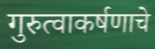
गुरुत्वाकर्षणाचे